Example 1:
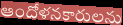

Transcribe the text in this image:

ఆందోళనకారులను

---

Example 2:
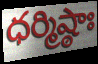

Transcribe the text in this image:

ధర్మిష్ఠాః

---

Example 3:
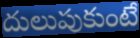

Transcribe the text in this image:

దులుపుకుంటే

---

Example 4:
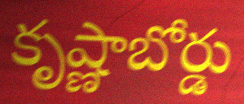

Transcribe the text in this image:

కృష్ణాబోర్డు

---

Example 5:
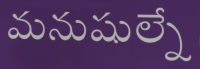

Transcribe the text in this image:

మనుషుల్నే